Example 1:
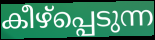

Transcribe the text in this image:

കീഴ്പ്പെടുന്ന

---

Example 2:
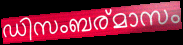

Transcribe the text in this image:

ഡിസംബര്മാസം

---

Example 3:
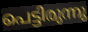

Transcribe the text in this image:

പെട്ടിരുന്നു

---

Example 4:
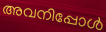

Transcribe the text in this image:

അവനിപ്പോൾ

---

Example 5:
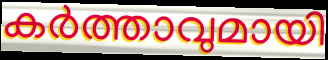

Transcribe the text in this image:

കർത്താവുമായി